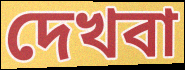
দেখবা